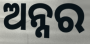
ଅନ୍ନର